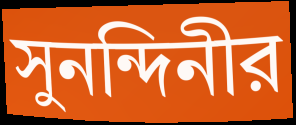
সুনন্দিনীর